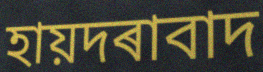
হায়দৰাবাদ